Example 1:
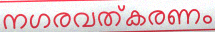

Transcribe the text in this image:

നഗരവത്കരണം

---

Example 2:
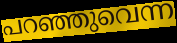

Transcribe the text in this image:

പറഞ്ഞുവെന്ന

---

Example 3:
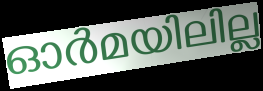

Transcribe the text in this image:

ഓർമയിലില്ല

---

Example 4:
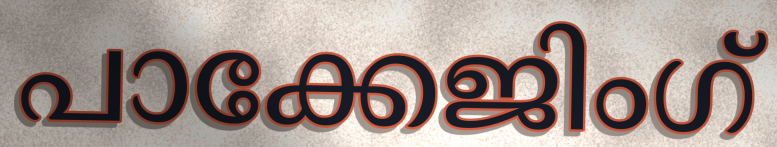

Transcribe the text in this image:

പാക്കേജിംഗ്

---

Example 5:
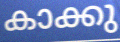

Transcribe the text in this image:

കാക്കു